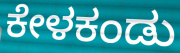
ಕೇಳಕಂಡು